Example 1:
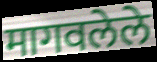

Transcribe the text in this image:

मागवलेले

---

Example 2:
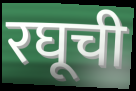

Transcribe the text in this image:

रघूची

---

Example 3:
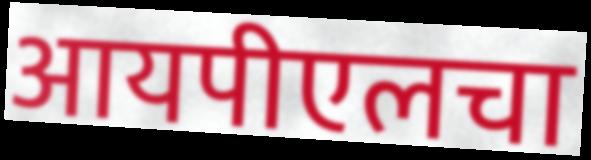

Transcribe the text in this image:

आयपीएलचा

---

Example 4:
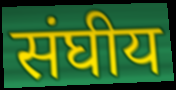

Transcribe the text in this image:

संघीय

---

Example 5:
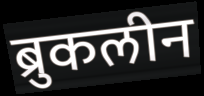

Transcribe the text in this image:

ब्रुकलीन